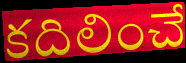
కదిలించే